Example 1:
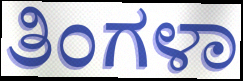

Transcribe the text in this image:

ತಿಂಗಳಾ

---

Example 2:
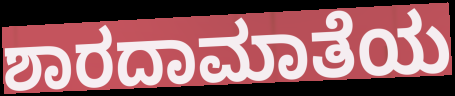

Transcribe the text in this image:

ಶಾರದಾಮಾತೆಯ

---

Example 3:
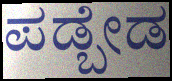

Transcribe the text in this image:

ಪಡ್ಬೇಡ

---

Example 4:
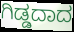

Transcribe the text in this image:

ಗಿಡ್ಡದಾದ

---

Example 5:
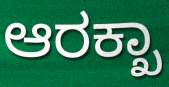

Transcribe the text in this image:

ಆರಕ್ಖಾ